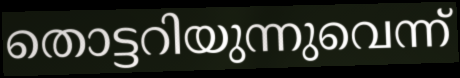
തൊട്ടറിയുന്നുവെന്ന്